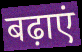
बढ़ाएं